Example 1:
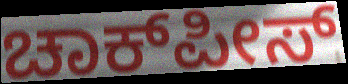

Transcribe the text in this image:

ಚಾಕ್‍ಪೀಸ್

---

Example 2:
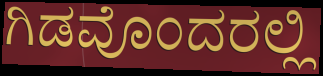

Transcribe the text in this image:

ಗಿಡವೊಂದರಲ್ಲಿ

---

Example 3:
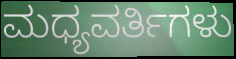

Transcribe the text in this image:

ಮಧ್ಯವರ್ತಿಗಳು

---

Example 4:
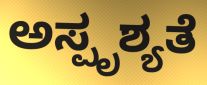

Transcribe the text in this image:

ಅಸ್ಪೃಶ್ಯತೆ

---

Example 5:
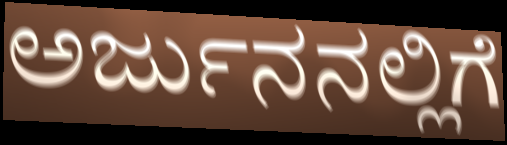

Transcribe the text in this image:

ಅರ್ಜುನನಲ್ಲಿಗೆ